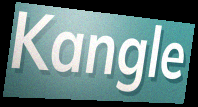
Kangle